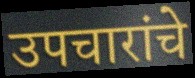
उपचारांचे